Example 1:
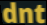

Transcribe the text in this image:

dnt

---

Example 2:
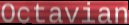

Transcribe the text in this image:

Octavian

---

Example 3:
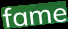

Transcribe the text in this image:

fame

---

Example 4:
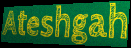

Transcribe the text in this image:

Ateshgah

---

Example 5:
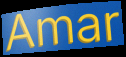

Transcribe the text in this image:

Amar